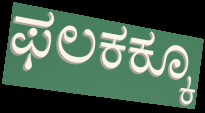
ಫಲಕಕ್ಕೂ